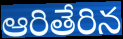
ఆరితేరిన